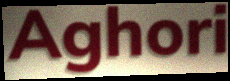
Aghori